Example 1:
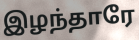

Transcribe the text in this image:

இழந்தாரே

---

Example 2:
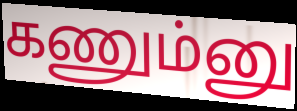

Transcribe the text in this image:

கணும்னு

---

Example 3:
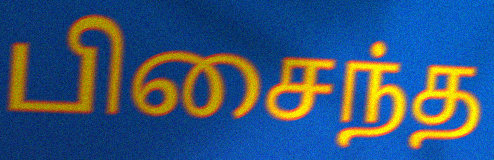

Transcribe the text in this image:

பிசைந்த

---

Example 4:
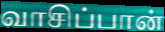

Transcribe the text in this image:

வாசிப்பான்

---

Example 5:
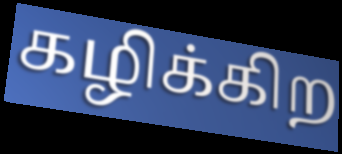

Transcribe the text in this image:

கழிக்கிற